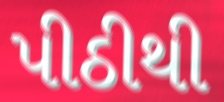
પીઠીથી